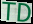
TD